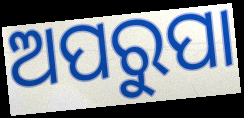
ଅପରୁପା